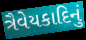
ત્રૈવેયકાદિનું